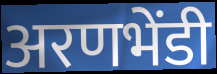
अरणभेंडी